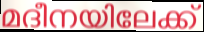
മദീനയിലേക്ക്